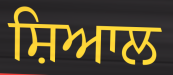
ਸ਼ਿਆਲ